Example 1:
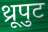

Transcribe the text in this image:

थ्रूपुट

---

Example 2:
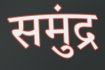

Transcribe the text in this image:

समुंद्र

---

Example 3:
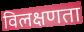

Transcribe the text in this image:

विलक्षणता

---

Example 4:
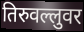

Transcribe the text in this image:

तिरुवल्लुवर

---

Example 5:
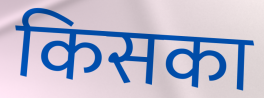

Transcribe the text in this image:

किसका